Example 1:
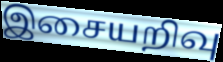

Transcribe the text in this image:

இசையறிவு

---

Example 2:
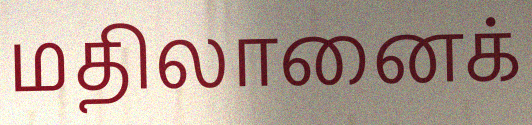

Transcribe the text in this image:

மதிலானைக்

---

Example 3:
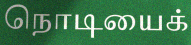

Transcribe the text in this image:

நொடியைக்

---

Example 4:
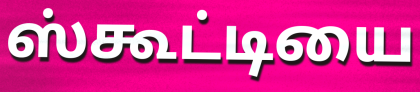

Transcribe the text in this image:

ஸ்கூட்டியை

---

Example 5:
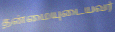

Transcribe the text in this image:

தன்மையுடையவர்